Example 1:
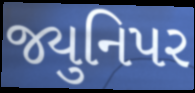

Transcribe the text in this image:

જ્યુનિપર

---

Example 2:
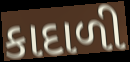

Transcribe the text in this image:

કાદાળી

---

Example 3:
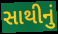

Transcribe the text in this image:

સાથીનું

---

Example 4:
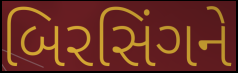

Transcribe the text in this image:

બિરસિંગને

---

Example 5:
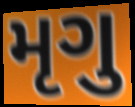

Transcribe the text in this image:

મૃગુ